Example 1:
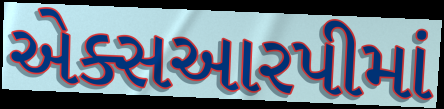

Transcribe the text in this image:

એક્સઆરપીમાં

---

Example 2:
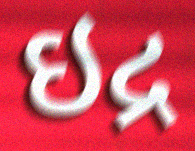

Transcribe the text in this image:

ઇદ્ર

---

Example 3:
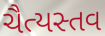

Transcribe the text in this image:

ચૈત્યસ્તવ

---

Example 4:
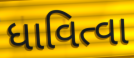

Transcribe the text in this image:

ધાવિત્વા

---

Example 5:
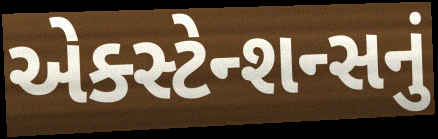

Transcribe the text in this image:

એક્સ્ટેન્શન્સનું